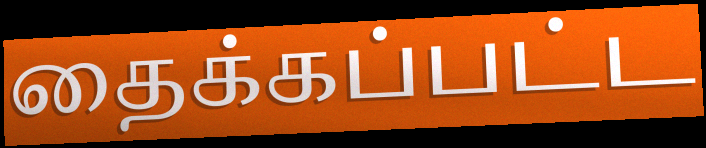
தைக்கப்பட்ட